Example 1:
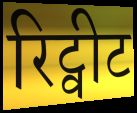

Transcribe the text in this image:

रिट्वीट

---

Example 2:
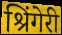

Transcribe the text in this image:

श्रिंगेरी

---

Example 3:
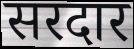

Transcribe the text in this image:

सरदार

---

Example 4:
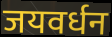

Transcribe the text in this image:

जयवर्धन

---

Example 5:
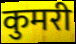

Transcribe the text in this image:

कुमरी